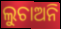
ଲୁଚାଅନି